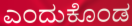
ಎಂದುಕೊಂಡ